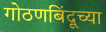
गोठणबिंदूच्या